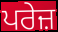
ਪਰੇਜ਼